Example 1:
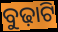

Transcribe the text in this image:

ବୁଢ଼ାଟି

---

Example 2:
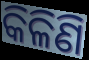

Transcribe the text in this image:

କିଳିଣି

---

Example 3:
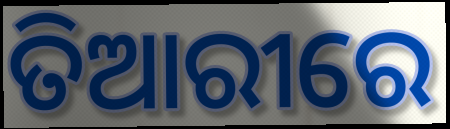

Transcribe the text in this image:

ତିଆରୀରେ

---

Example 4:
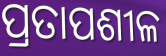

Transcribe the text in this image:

ପ୍ରତାପଶୀଳ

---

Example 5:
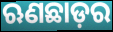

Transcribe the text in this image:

ଋଣଛାଡ଼ର